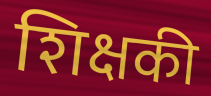
शिक्षकी